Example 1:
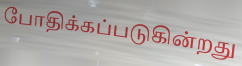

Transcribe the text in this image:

போதிக்கப்படுகின்றது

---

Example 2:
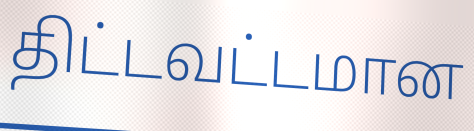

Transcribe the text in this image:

திட்டவட்டமான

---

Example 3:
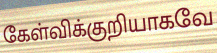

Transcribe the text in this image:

கேள்விக்குறியாகவே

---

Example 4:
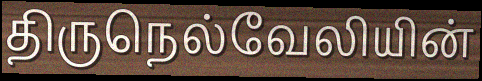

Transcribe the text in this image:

திருநெல்வேலியின்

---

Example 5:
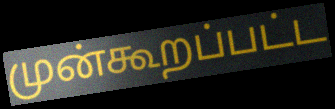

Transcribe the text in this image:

முன்கூறப்பட்ட